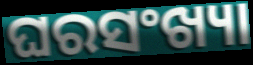
ଘରସଂଖ୍ୟା